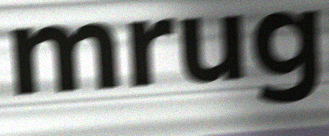
mrug